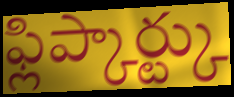
ఫ్లిప్కార్ట్కు